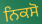
ਨਿਕਸੋ